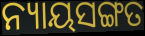
ନ୍ୟାୟସଙ୍ଗତ